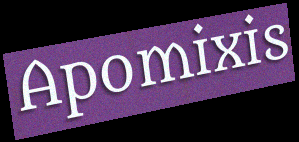
Apomixis